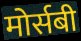
मोर्सबी